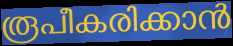
രൂപീകരിക്കാൻ